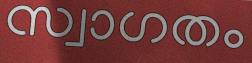
സ്വാഗതം